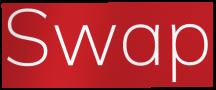
Swap